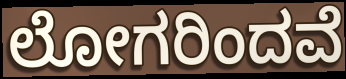
ಲೋಗರಿಂದವೆ